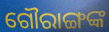
ଗୌରାଙ୍ଗଙ୍କ